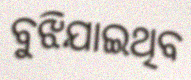
ବୁଝିଯାଇଥିବ